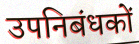
उपनिबंधकों